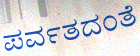
ಪರ್ವತದಂತೆ